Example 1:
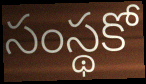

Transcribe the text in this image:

సంస్థకో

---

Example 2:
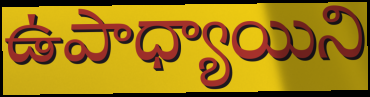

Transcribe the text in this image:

ఉపాధ్యాయిని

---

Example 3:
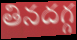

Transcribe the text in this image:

తినదగ్గ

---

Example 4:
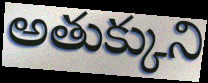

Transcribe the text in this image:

అతుక్కుని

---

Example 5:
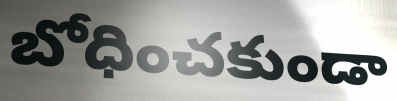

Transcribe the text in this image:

బోధించకుండా